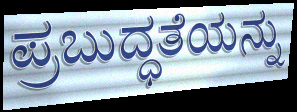
ಪ್ರಬುದ್ಧತೆಯನ್ನು